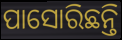
ପାସୋରିଛନ୍ତି